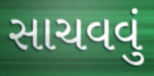
સાચવવું